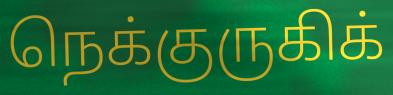
நெக்குருகிக்